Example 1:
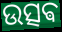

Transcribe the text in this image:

ଉତ୍ସଵ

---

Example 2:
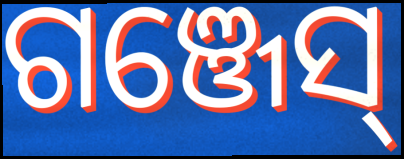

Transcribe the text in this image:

ଗଞ୍ଜେସ୍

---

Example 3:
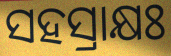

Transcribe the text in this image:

ସହସ୍ରାକ୍ଷଃ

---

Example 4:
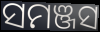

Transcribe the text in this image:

ସମଞ୍ଜସ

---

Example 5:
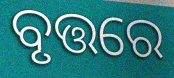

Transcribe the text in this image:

ବୃତ୍ତରେ